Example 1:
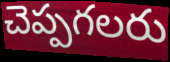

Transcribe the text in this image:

చెప్పగలరు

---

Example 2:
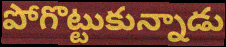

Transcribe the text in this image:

పోగొట్టుకున్నాడు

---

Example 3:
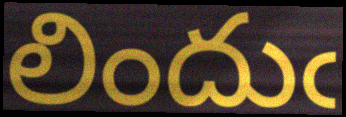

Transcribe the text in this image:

లిందుఁ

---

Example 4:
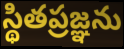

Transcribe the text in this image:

స్థితప్రజ్ఞను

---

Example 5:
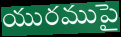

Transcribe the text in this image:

యురముపై